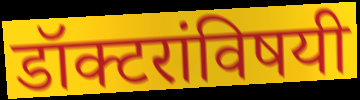
डॉक्टरांविषयी